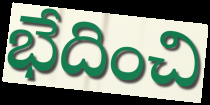
భేదించి